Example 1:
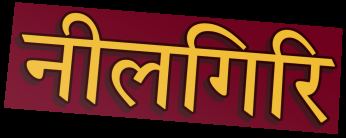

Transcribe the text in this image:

नीलगिरि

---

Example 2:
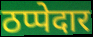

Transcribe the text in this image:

ठप्पेदार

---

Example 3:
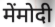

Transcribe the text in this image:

मेंमोदी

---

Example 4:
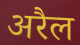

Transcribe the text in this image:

अरैल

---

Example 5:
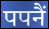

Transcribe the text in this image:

पपनैं